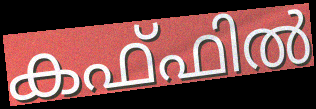
കഫ്ഫിൽ